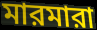
মারমারা